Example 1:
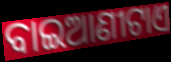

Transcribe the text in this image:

ବାଇଆଣୀଟାଏ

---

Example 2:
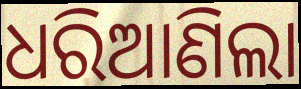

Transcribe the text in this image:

ଧରିଆଣିଲା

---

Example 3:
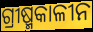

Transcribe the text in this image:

ଗ୍ରୀଷ୍ମକାଳୀନ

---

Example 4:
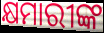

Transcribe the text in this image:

କ୍ଷମାରୀଙ୍କ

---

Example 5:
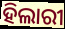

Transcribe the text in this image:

ହିଲାରୀ